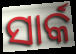
ସାର୍କ